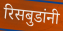
रिसबुडांनी